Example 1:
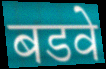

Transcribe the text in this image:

बडवे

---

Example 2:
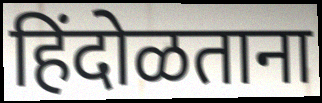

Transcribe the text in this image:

हिंदोळताना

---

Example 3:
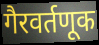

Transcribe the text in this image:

गैरवर्तणूक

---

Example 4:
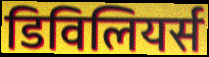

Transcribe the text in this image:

डिविलियर्स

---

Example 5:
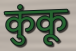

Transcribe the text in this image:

कुंकू